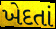
ખેદતાં